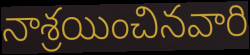
నాశ్రయించినవారి